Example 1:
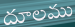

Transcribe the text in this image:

దూలము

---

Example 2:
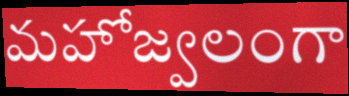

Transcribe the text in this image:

మహోజ్వలంగా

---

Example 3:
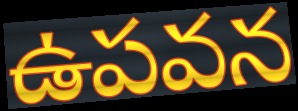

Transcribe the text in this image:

ఉపవన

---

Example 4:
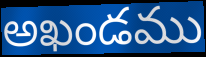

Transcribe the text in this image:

అఖండము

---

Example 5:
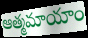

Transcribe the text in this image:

ఆత్మమాయాం